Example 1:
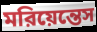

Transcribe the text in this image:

মরিয়েন্তেস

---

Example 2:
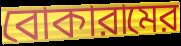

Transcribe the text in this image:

বোকারামের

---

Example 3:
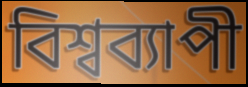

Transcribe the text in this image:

বিশ্বব্যাপী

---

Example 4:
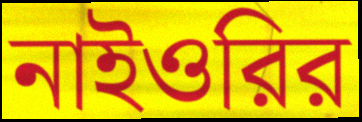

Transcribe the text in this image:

নাইওরির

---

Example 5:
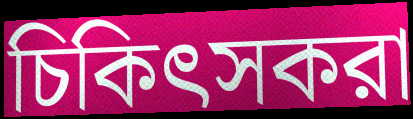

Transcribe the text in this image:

চিকিৎসকরা